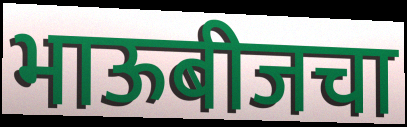
भाऊबीजचा